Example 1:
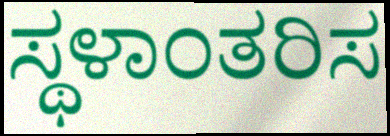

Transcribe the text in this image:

ಸ್ಥಳಾಂತರಿಸ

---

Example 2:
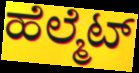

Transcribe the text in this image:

ಹೆಲ್ಮೆಟ್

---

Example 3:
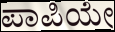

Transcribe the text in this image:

ಪಾಪಿಯೇ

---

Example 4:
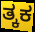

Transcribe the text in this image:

ತ್ಕಕ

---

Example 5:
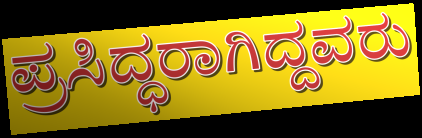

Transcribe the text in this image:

ಪ್ರಸಿದ್ಧರಾಗಿದ್ದವರು